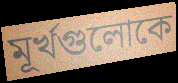
মূর্খগুলোকে